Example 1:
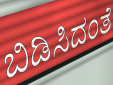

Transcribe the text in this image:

ಬಿಡಿಸಿದಂತೆ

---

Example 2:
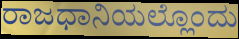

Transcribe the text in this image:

ರಾಜಧಾನಿಯಲ್ಲೊಂದು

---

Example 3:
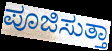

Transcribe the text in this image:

ಪೂಜಿಸುತ್ತಾ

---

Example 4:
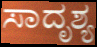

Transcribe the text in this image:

ಸಾದೃಶ್ಯ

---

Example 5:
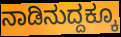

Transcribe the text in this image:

ನಾಡಿನುದ್ದಕ್ಕೂ